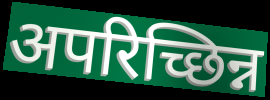
अपरिच्छिन्न